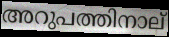
അറുപത്തിനാല്